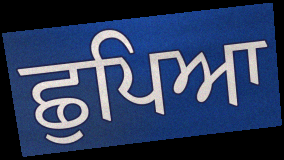
ਛੁਪਿਆ